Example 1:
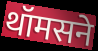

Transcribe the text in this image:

थॉमसने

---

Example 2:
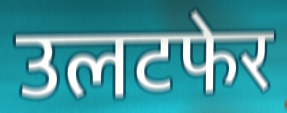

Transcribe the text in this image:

उलटफेर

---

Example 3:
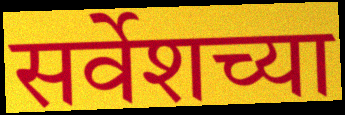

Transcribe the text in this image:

सर्वेशच्या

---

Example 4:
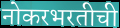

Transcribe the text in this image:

नोकरभरतीची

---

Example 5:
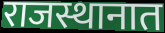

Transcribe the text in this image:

राजस्थानात